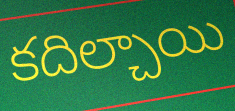
కదిల్చాయి